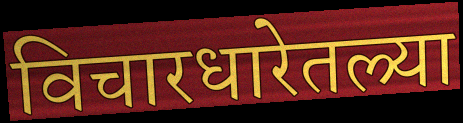
विचारधारेतल्या